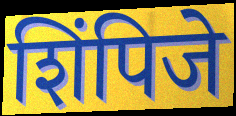
शिंपिजे